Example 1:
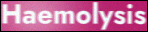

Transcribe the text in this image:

Haemolysis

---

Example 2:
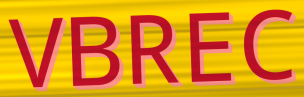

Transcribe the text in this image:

VBREC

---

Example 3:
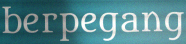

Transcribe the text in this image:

berpegang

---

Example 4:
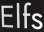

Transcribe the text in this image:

Elfs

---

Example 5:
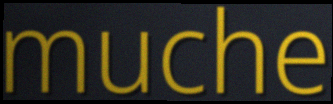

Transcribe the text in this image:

muche